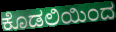
ಕೊಡಲಿಯಿಂದ